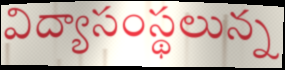
విద్యాసంస్థలున్న